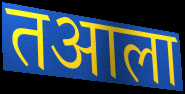
तआला